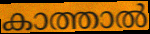
കാത്താൽ